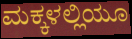
ಮಕ್ಕಳಲ್ಲಿಯೂ